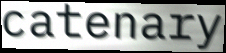
catenary